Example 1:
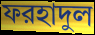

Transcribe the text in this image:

ফরহাদুল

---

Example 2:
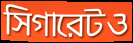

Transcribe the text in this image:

সিগারেটও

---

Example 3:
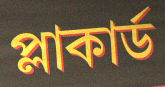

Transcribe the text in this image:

প্লাকার্ড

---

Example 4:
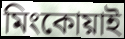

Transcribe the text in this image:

মিংকোয়াই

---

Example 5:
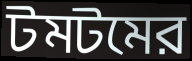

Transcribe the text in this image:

টমটমের